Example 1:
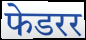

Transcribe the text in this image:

फेडरर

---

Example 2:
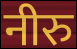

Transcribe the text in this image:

नीरु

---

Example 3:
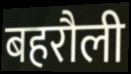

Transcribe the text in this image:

बहरौली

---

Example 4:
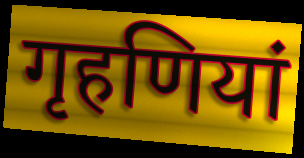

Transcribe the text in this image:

गृहणियां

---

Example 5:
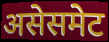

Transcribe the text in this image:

असेसमेट